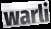
warli